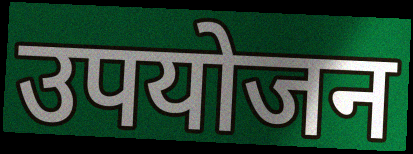
उपयोजन